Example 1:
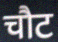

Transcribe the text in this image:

चौट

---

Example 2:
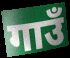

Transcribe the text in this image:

गाउँ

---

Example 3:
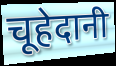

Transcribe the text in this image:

चूहेदानी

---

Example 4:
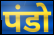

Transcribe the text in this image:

पंडो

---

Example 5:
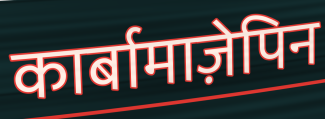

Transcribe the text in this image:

कार्बामाज़ेपिन